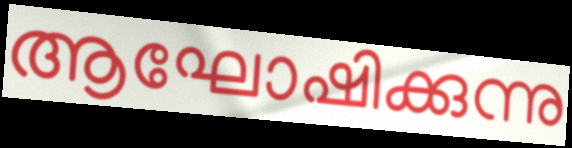
ആഘോഷിക്കുന്നു